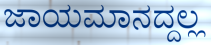
ಜಾಯಮಾನದ್ದಲ್ಲ